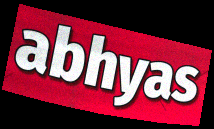
abhyas